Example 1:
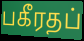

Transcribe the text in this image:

பகீரதப்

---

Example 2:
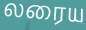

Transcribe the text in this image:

லரைய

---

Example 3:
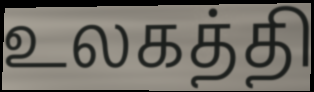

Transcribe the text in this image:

உலகத்தி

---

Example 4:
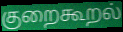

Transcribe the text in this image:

குறைகூறல்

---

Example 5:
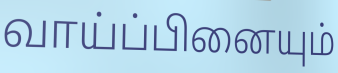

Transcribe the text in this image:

வாய்ப்பினையும்